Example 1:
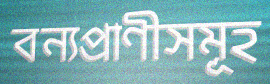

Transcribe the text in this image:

বন্যপ্ৰাণীসমূহ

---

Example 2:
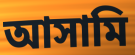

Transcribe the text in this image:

আসামি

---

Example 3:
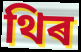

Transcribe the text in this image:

থিৰ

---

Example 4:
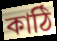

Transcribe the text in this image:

কাঠি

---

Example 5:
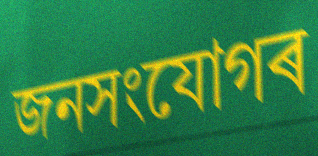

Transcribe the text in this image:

জনসংযোগৰ